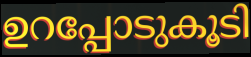
ഉറപ്പോടുകൂടി